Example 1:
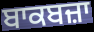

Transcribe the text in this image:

ਬਾਕਬਜ਼ਾ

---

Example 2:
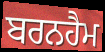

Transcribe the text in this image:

ਬਰਨਹੈਮ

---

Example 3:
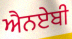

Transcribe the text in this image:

ਐਨਏਬੀ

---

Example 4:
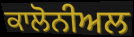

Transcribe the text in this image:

ਕਾਲੋਨੀਅਲ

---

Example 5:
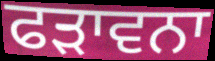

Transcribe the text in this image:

ਫੜਾਵਨਾ